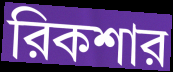
রিকশার